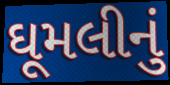
ઘૂમલીનું